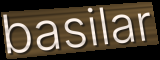
basilar